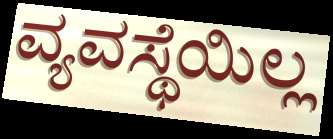
ವ್ಯವಸ್ಥೆಯಿಲ್ಲ